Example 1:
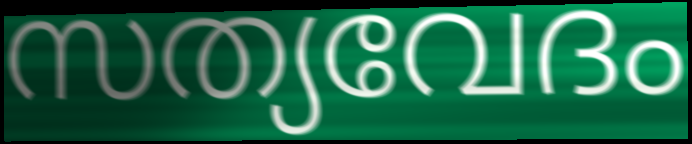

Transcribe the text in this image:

സത്യവേദം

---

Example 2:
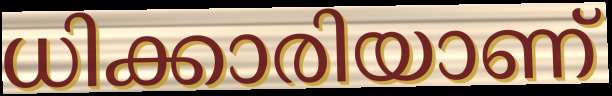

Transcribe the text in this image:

ധിക്കാരിയാണ്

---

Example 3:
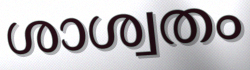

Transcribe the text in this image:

ശാശ്വതം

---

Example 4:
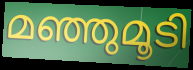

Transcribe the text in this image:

മഞ്ഞുമൂടി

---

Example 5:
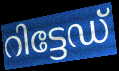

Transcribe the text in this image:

റിട്ടേഡ്